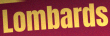
Lombards